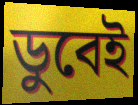
ডুবেই